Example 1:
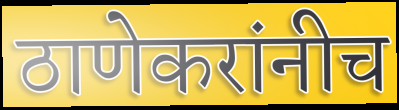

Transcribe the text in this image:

ठाणेकरांनीच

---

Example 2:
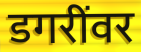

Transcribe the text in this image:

डगरींवर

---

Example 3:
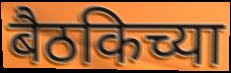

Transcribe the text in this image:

बैठकिच्या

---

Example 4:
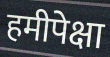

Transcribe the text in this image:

हमीपेक्षा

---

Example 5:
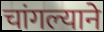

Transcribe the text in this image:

चांगल्याने